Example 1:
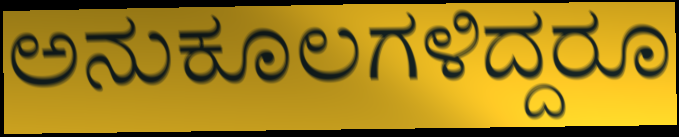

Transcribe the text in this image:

ಅನುಕೂಲಗಳಿದ್ದರೂ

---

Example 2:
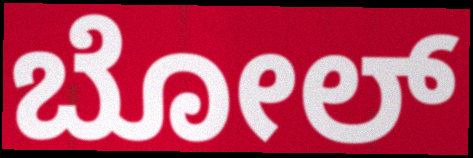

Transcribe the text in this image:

ಬೋಲ್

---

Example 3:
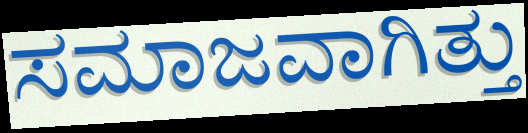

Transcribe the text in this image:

ಸಮಾಜವಾಗಿತ್ತು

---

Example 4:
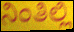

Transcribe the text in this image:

ನಿಂತಿಲ್ಲಿ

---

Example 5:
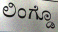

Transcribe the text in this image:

ಲಿಂಗ್ಡೊ